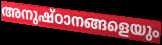
അനുഷ്ഠാനങ്ങളെയും